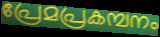
പ്രേമപ്രകമ്പനം